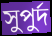
সুপুর্দ